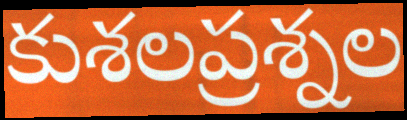
కుశలప్రశ్నల